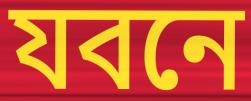
যবনে